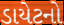
ડાયેટનો